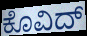
ಕೊವಿದ್